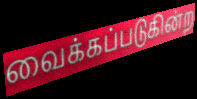
வைக்கப்படுகின்ற